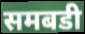
समबडी